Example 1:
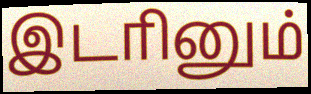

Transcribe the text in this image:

இடரினும்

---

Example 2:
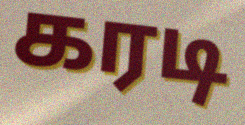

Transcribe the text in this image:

கரடி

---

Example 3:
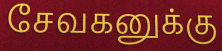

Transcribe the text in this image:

சேவகனுக்கு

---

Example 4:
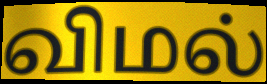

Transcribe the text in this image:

விமல்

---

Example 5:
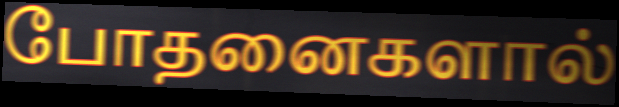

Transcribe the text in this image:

போதனைகளால்